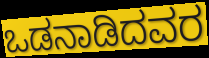
ಒಡನಾಡಿದವರ